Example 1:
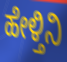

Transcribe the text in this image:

ಹೇಳ್ತಿನಿ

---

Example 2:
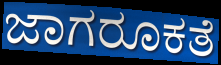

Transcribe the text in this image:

ಜಾಗರೂಕತೆ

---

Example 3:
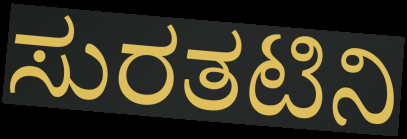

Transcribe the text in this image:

ಸುರತಟಿನಿ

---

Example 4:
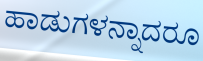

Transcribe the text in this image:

ಹಾಡುಗಳನ್ನಾದರೂ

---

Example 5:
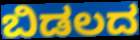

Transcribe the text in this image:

ಬಿಡಲದ